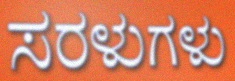
ಸರಳುಗಳು